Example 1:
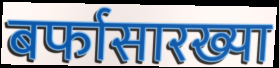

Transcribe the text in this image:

बर्फासारख्या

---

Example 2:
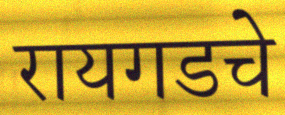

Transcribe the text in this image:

रायगडचे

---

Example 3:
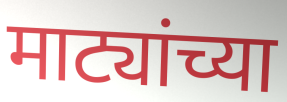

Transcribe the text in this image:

माट्यांच्या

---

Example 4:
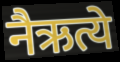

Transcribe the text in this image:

नैऋत्ये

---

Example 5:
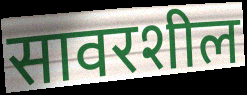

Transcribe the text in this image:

सावरशील